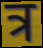
त्र